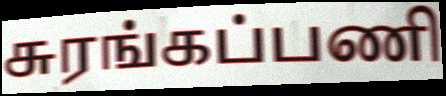
சுரங்கப்பணி